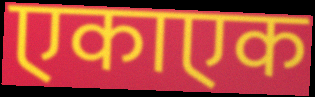
एकाएक